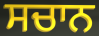
ਸਚਾਨ